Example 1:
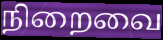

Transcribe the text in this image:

நிறைவை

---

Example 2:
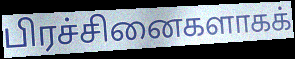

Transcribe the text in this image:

பிரச்சினைகளாகக்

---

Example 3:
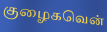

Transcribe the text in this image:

குழைகவென்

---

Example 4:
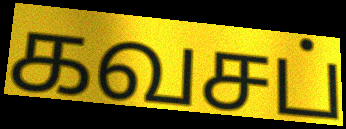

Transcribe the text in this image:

கவசப்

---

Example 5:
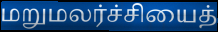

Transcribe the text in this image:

மறுமலர்ச்சியைத்